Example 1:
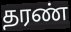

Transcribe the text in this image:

தரண்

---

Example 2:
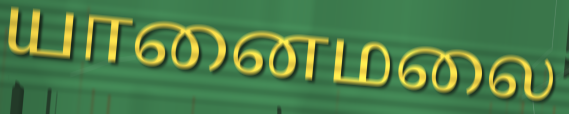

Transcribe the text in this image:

யானைமலை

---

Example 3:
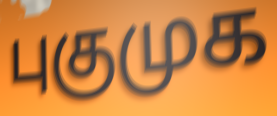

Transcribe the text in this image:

புகுமுக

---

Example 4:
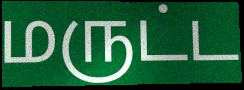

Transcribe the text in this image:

மருட்ட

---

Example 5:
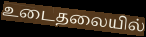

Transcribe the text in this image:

உடைதலையில்